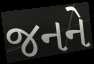
જનને